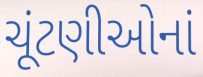
ચૂંટણીઓનાં